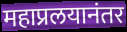
महाप्रलयानंतर